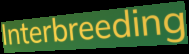
Interbreeding